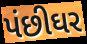
પંછીઘર